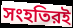
সংহতিরই